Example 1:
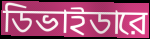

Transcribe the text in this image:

ডিভাইডারে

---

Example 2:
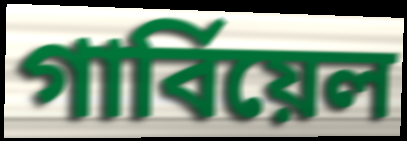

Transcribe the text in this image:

গার্বিয়েল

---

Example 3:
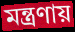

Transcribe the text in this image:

মন্ত্রণায়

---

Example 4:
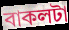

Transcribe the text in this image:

বাকলটা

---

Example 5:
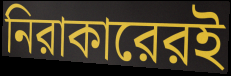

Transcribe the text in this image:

নিরাকারেরই